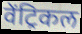
वेंट्रिकल